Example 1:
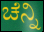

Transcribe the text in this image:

ಚೆನ್ನಿ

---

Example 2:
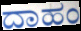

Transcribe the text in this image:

ದಾಹಂ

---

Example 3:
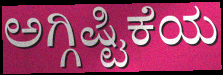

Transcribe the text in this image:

ಅಗ್ಗಿಷ್ಟಿಕೆಯ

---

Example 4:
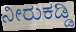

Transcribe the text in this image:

ನೀರುಕಡ್ಡಿ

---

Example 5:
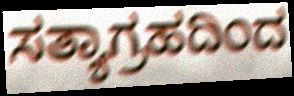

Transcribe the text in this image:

ಸತ್ಯಾಗ್ರಹದಿಂದ